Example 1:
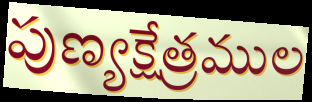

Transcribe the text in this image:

పుణ్యక్షేత్రముల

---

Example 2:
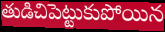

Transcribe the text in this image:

తుడిచిపెట్టుకుపోయిన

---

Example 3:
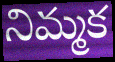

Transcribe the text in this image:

నిమ్మక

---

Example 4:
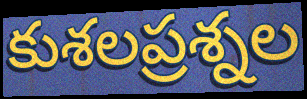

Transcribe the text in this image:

కుశలప్రశ్నల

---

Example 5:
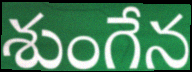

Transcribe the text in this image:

శుంగేన